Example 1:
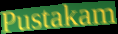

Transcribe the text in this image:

Pustakam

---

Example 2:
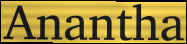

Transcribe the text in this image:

Anantha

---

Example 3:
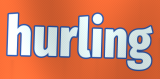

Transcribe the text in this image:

hurling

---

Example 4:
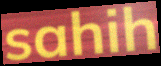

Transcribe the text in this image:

sahih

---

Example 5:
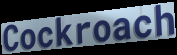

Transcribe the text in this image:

Cockroach